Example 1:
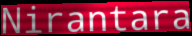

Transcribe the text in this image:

Nirantara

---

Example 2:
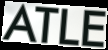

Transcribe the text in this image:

ATLE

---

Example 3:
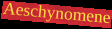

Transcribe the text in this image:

Aeschynomene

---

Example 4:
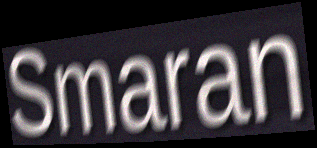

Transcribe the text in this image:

Smaran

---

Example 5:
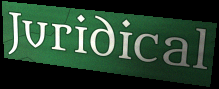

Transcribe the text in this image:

Juridical